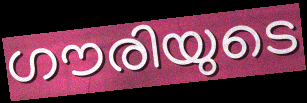
ഗൗരിയുടെ